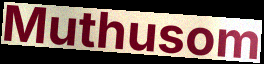
Muthusom